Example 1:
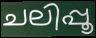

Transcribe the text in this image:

ചലിപ്പൂ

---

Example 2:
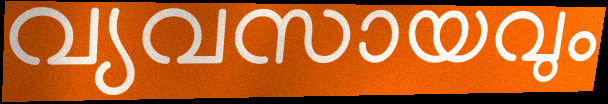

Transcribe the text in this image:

വ്യവസായവും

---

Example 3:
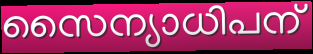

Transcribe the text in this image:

സൈന്യാധിപന്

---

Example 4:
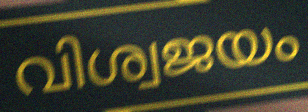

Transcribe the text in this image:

വിശ്വജയം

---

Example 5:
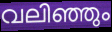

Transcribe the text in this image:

വലിഞ്ഞും